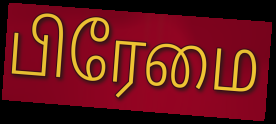
பிரேமை